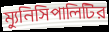
ম্যুনিসিপালিটির